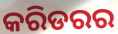
କରିଡରର